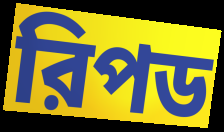
রিপড